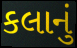
કલાનું